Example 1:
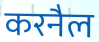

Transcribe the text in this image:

करनैल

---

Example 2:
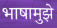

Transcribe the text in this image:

भाषामुझे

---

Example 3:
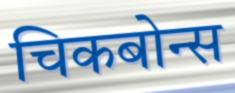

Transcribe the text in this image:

चिकबोन्स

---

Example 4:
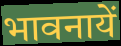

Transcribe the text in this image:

भावनायें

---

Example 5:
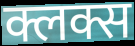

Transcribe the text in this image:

क्लक्स